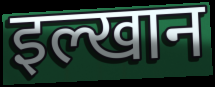
इल्खान